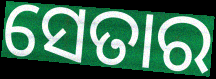
ସେତାର